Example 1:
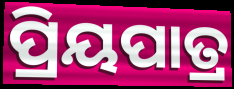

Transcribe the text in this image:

ପ୍ରିୟପାତ୍ର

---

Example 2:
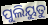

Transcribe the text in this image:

ପୁଲିୟୁତୁ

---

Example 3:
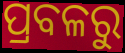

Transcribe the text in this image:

ପ୍ରବଳରୁ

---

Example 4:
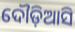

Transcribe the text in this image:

ଦୌଡ଼ିଆସି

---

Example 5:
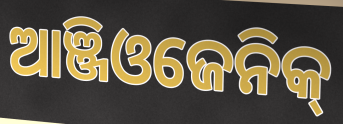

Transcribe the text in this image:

ଆଞ୍ଜିଓଜେନିକ୍